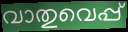
വാതുവെപ്പ്